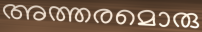
അത്തരമൊരു